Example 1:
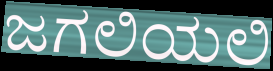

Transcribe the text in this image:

ಜಗಲಿಯಲಿ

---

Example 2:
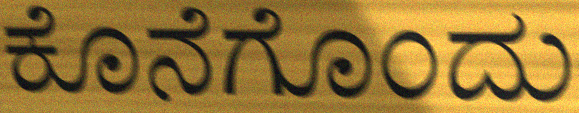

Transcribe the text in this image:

ಕೊನೆಗೊಂದು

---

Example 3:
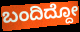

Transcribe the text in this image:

ಬಂದಿದ್ದೋ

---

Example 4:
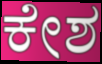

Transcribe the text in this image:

ಕೇಶ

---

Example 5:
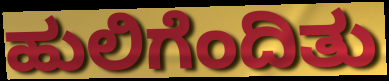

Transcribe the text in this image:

ಹುಲಿಗೆಂದಿತು